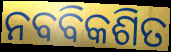
ନବବିକଶିତ